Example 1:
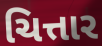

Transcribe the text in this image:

ચિત્તાર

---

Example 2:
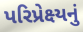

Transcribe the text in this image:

પરિપ્રેક્ષ્યનું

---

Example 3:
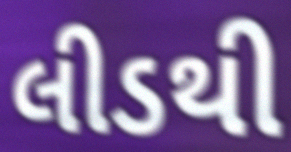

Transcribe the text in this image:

લીડથી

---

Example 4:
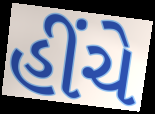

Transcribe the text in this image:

હીંચે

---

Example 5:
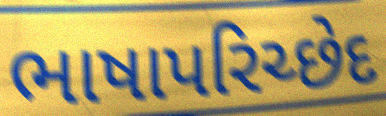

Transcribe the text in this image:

ભાષાપરિચ્છેદ